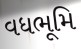
વધભૂમિ